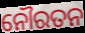
ନୌରତନ